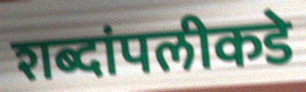
शब्दांपलीकडे